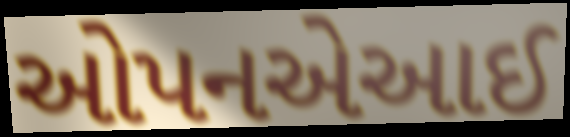
ઓપનએઆઈ